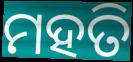
ମହତି